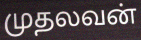
முதலவன்